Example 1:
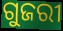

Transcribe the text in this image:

ଗୁଜରୀ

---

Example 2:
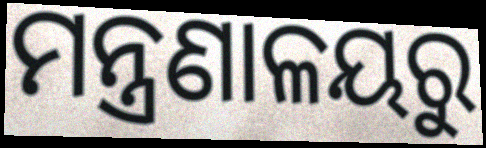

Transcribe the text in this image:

ମନ୍ତ୍ରଣାଳୟରୁ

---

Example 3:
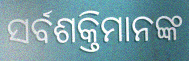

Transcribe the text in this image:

ସର୍ବଶକ୍ତିମାନଙ୍କ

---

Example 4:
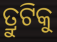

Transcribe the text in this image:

ତ୍ରୁଟିକୁ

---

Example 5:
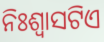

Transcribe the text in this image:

ନିଃଶ୍ୱାସଟିଏ